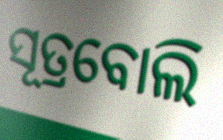
ସୂତ୍ରବୋଲି